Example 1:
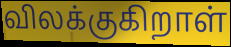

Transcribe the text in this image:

விலக்குகிறாள்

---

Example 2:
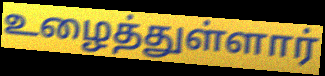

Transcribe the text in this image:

உழைத்துள்ளார்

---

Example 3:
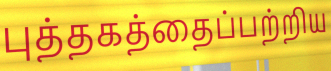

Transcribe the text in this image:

புத்தகத்தைப்பற்றிய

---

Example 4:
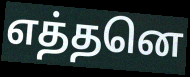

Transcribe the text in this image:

எத்தனெ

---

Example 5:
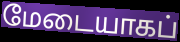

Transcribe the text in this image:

மேடையாகப்